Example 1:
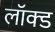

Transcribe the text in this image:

लॉक्ड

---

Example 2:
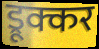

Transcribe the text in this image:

ड्रूक्कर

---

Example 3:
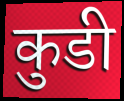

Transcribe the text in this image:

कुडी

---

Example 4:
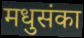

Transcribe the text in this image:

मधुसंका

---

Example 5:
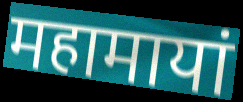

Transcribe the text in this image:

महामायां